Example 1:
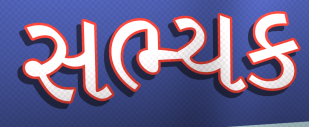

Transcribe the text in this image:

સભ્યક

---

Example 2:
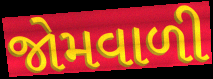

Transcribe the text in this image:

જોમવાળી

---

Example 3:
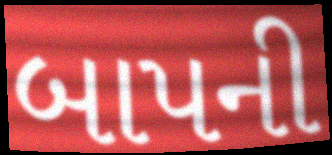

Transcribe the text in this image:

બાપની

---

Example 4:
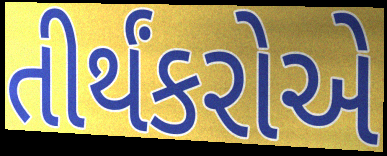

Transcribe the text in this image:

તીર્થંકરોએ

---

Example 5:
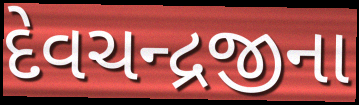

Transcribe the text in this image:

દેવચન્દ્રજીના